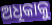
ଅଧିକାକୁ